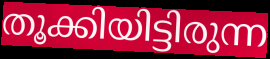
തൂക്കിയിട്ടിരുന്ന